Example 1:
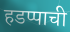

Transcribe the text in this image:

हडप्पाची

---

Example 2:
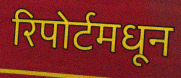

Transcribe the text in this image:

रिपोर्टमधून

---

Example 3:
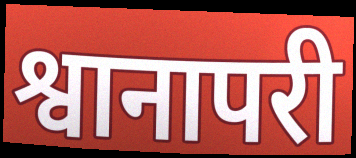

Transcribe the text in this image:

श्वानापरी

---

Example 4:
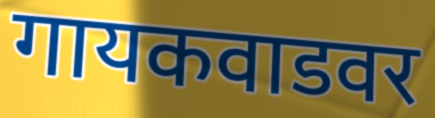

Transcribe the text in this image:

गायकवाडवर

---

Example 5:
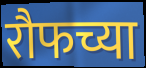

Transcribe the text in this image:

रौफच्या